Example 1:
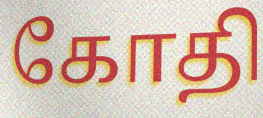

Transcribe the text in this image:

கோதி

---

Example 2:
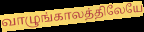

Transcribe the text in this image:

வாழுங்காலத்திலேயே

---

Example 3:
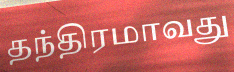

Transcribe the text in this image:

தந்திரமாவது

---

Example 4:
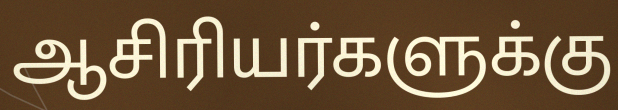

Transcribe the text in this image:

ஆசிரியர்களுக்கு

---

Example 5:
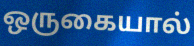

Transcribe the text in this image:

ஒருகையால்